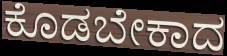
ಕೊಡಬೇಕಾದ